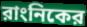
রাংনিকের